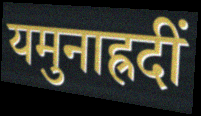
यमुनाह्रदीं